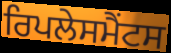
ਰਿਪਲੇਸਮੈਂਟਸ